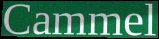
Cammel